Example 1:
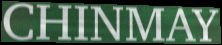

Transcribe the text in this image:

CHINMAY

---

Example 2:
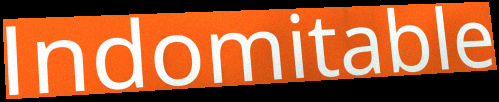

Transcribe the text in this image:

Indomitable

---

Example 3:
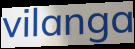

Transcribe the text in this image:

vilanga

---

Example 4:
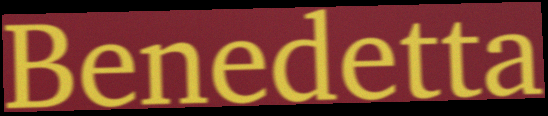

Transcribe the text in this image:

Benedetta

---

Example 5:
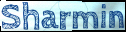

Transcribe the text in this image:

Sharmin